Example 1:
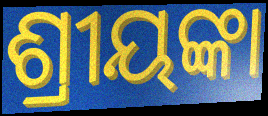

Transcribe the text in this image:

ଶ୍ରୀୟଙ୍କା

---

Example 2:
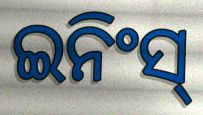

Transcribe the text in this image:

ଇନିଂସ୍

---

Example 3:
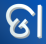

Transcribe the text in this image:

ଡା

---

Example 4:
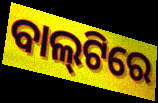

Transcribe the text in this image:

ବାଲ୍‌ଟିରେ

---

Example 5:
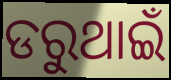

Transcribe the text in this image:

ଡରୁଥାଇଁ